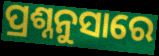
ପ୍ରଶ୍ନନୁସାରେ